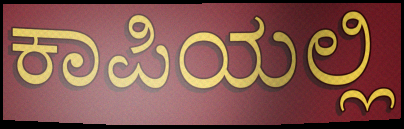
ಕಾಪಿಯಲ್ಲಿ